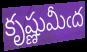
కృష్ణుమీఁద